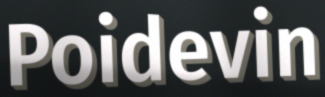
Poidevin